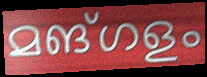
മങ്ഗളം